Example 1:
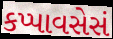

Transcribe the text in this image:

કપ્પાવસેસં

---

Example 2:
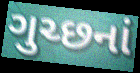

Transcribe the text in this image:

ગુચ્છનાં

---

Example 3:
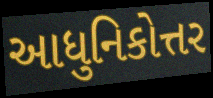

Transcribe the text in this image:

આધુનિકોત્તર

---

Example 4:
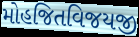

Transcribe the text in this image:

મોહજિતવિજયજી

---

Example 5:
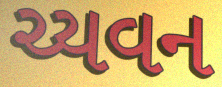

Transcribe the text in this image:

ચ્યવન